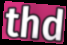
thd